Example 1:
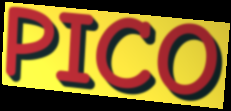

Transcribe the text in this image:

PICO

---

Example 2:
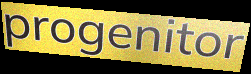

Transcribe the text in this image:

progenitor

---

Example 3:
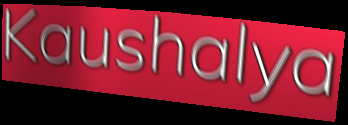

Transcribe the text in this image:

Kaushalya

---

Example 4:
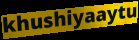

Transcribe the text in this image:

khushiyaaytu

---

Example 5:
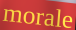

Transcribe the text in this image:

morale